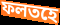
ফলতহে